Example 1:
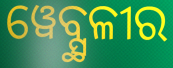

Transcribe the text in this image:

ୱେବ୍ସ୍ଥଳୀର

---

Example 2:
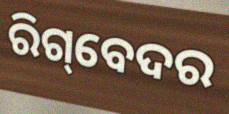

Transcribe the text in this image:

ରିଗ୍‌ବେଦର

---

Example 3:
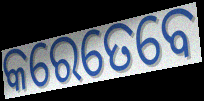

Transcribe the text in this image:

କରେତେବେ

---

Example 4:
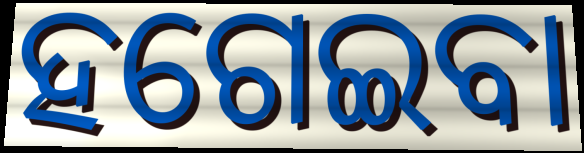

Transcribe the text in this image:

ହଗେଇବା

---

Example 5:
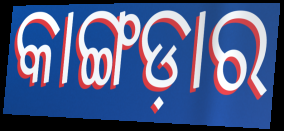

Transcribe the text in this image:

କାଙ୍ଗଡ଼ାର